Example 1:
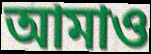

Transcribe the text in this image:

আমাও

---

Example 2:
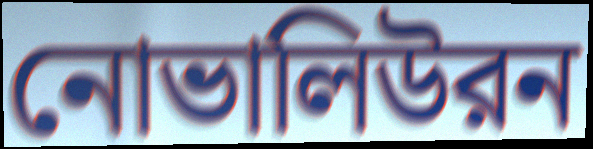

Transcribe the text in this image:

নোভালিউরন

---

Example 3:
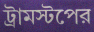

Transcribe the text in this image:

ট্রামস্টপের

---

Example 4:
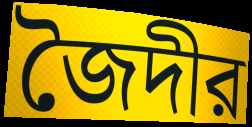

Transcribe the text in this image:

জৈদীর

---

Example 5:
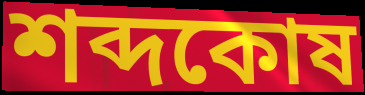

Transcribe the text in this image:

শব্দকোষ